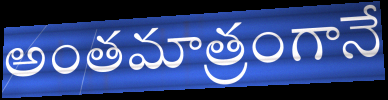
అంతమాత్రంగానే